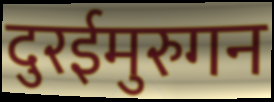
दुरईमुरुगन